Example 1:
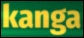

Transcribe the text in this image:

kanga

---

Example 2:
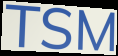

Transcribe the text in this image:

TSM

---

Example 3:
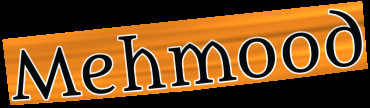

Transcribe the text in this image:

Mehmood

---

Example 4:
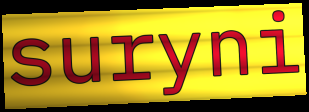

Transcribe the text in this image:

suryni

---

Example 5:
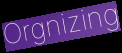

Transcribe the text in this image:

Orgnizing